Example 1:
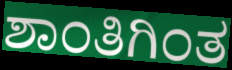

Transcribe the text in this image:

ಶಾಂತಿಗಿಂತ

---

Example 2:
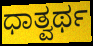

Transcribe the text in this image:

ಧಾತ್ವರ್ಥ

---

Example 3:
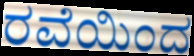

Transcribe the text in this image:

ರವೆಯಿಂದ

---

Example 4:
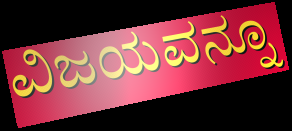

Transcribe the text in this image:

ವಿಜಯವನ್ನೂ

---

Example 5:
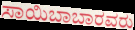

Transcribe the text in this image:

ಸಾಯಿಬಾಬಾರವರು